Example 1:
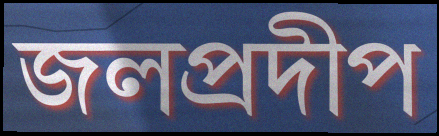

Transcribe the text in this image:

জলপ্রদীপ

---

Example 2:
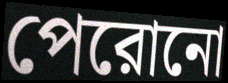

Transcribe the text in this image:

পেরোনো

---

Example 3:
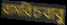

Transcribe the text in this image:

রামরিচবাবু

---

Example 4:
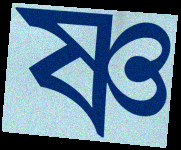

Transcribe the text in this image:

ষ্ণ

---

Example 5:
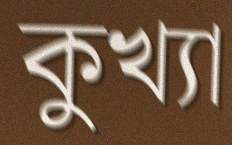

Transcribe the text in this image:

কুখ্যা